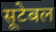
सूटेबल